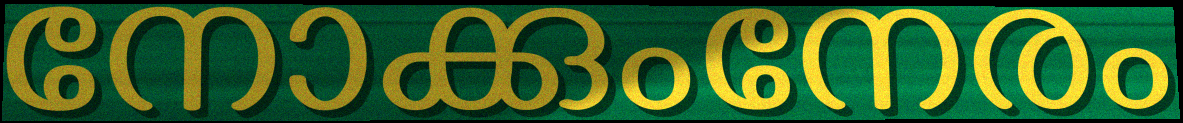
നോക്കുംനേരം